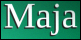
Maja